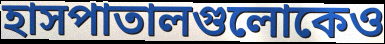
হাসপাতালগুলোকেও